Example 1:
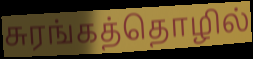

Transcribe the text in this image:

சுரங்கத்தொழில்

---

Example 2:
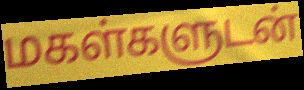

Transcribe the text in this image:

மகள்களுடன்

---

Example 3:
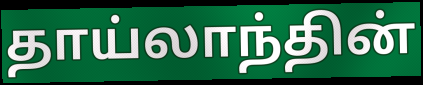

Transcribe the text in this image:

தாய்லாந்தின்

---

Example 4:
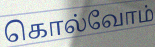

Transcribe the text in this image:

கொல்வோம்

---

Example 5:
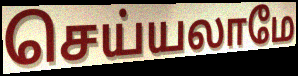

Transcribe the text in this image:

செய்யலாமே